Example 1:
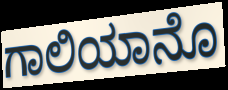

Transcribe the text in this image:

ಗಾಲಿಯಾನೊ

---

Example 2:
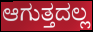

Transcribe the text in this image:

ಆಗುತ್ತದಲ್ಲ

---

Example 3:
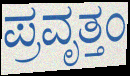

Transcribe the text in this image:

ಪ್ರವೃತ್ತಂ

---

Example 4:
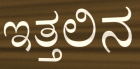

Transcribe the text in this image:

ಇತ್ತಲಿನ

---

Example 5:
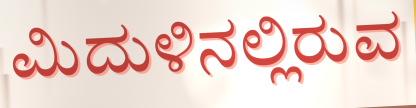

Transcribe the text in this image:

ಮಿದುಳಿನಲ್ಲಿರುವ